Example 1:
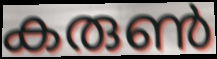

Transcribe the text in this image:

കരുൺ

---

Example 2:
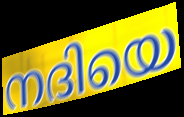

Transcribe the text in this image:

നദിയെ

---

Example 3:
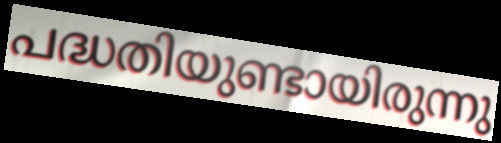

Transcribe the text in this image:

പദ്ധതിയുണ്ടായിരുന്നു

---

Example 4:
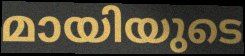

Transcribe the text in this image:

മായിയുടെ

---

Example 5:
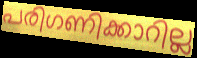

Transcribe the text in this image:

പരിഗണിക്കാറില്ല